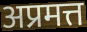
अप्रमत्त